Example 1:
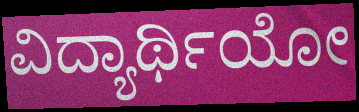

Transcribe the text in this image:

ವಿದ್ಯಾರ್ಥಿಯೋ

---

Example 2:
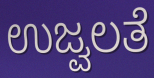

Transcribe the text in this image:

ಉಜ್ವಲತೆ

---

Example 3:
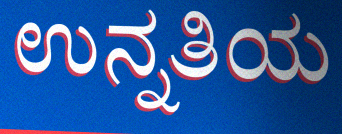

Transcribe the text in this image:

ಉನ್ನತಿಯ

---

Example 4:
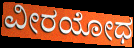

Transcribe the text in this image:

ವೀರಯೋಧ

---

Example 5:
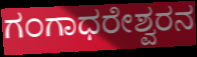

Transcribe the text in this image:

ಗಂಗಾಧರೇಶ್ವರನ